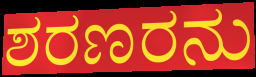
ಶರಣರನು